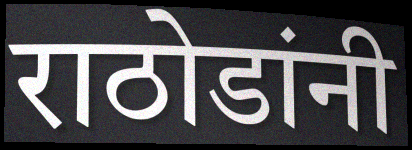
राठोडांनी